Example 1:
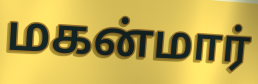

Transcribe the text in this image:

மகன்மார்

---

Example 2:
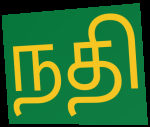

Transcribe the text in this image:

நதி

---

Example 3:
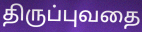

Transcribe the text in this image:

திருப்புவதை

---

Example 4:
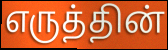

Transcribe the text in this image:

எருத்தின்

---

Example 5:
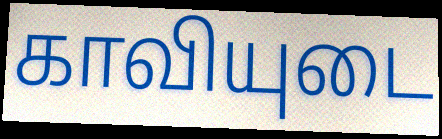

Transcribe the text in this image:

காவியுடை